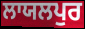
ਲਾਯਲਪੁਰ